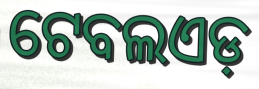
ଟେବଲଏଡ଼